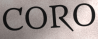
CORO